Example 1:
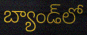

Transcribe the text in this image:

బ్యాండ్‌లో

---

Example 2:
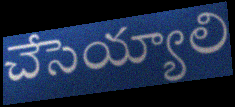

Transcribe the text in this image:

చేసెయ్యాలి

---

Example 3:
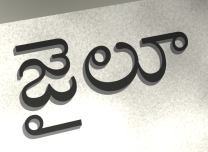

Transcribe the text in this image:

జైలూ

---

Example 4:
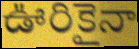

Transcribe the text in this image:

ఊరికైనా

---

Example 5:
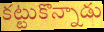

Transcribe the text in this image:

కట్టుకొన్నాడు